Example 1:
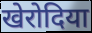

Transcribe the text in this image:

खेरोदिया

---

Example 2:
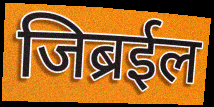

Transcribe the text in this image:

जिब्रईल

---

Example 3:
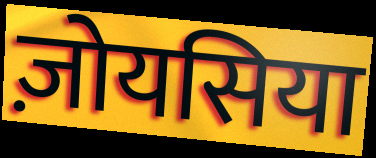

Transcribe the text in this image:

ज़ोयसिया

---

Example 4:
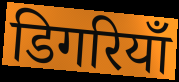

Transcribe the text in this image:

डिगरियाँ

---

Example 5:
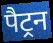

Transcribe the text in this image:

पैट्रन